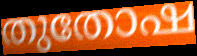
തുതോഷ